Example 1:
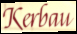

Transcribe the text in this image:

Kerbau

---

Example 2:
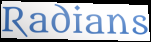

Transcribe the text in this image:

Radians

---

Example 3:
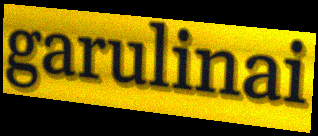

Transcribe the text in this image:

garulinai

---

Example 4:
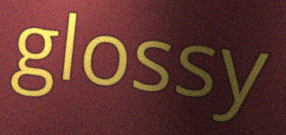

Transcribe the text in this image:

glossy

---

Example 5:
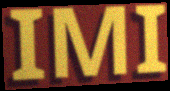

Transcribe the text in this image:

IMI